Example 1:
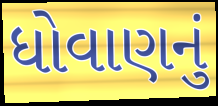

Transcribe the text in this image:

ધોવાણનું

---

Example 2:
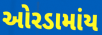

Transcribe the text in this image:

ઓરડામાંય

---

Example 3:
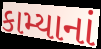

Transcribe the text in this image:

કામ્યાનાં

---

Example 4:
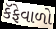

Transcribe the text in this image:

કૅફેવાળો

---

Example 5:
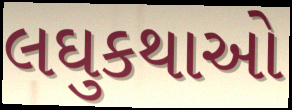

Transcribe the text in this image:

લઘુકથાઓ